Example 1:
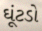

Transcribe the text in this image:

ઘૂંટડો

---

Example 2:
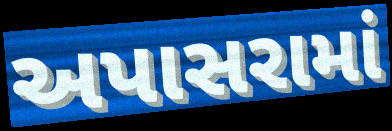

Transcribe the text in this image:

અપાસરામાં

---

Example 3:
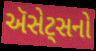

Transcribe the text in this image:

ઍસેટ્સનો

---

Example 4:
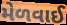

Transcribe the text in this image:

મેળવાઈ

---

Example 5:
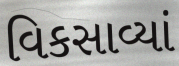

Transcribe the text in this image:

વિકસાવ્યાં